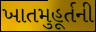
ખાતમુહૂર્તની